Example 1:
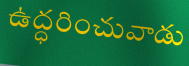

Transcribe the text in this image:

ఉద్ధరించువాడు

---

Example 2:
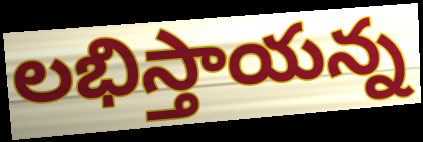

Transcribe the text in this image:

లభిస్తాయన్న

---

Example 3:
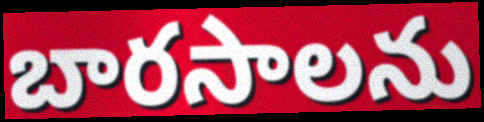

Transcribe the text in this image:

బారసాలను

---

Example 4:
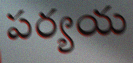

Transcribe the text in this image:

పర్యయ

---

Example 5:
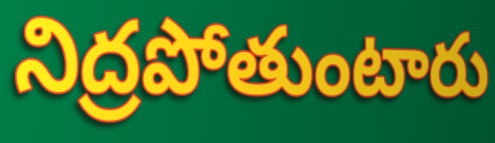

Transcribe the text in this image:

నిద్రపోతుంటారు